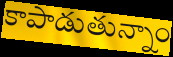
కాపాడుతున్నాం